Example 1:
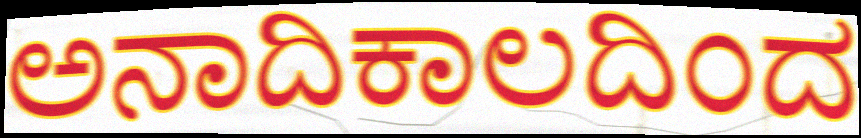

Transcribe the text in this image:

ಅನಾದಿಕಾಲದಿಂದ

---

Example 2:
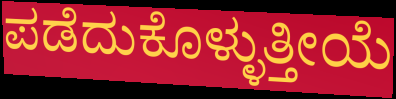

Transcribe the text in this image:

ಪಡೆದುಕೊಳ್ಳುತ್ತೀಯೆ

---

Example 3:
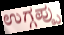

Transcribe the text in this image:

ಉಗ್ಗಪ್ಪು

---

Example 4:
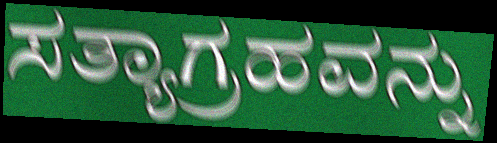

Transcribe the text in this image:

ಸತ್ಯಾಗ್ರಹವನ್ನು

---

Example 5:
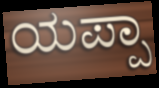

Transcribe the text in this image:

ಯಪ್ಪಾ